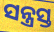
ସନ୍ତ୍ରସ୍ତ